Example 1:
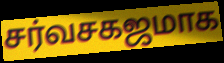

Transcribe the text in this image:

சர்வசகஜமாக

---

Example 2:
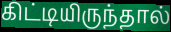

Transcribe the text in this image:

கிட்டியிருந்தால்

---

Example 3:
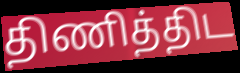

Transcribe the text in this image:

திணித்திட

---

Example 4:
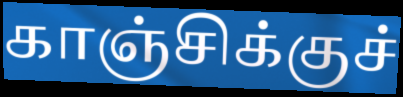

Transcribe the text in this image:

காஞ்சிக்குச்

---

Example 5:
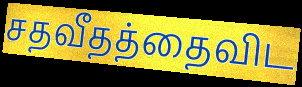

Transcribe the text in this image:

சதவீதத்தைவிட